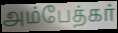
அம்பேத்கர்